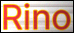
Rino